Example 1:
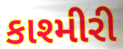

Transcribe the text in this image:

કાશ્મીરી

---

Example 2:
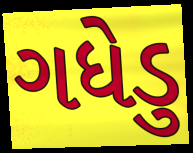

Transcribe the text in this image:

ગધેડુ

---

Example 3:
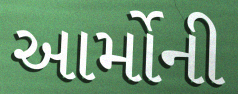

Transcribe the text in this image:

આર્મોની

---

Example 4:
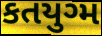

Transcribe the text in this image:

કતયુગ્મ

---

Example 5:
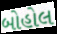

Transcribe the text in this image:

બોહોલ